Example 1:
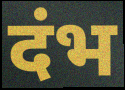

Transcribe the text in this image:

दंभ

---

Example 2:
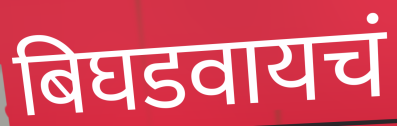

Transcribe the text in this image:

बिघडवायचं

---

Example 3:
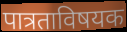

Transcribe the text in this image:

पात्रताविषयक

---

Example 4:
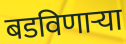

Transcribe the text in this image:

बडविणाऱ्या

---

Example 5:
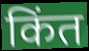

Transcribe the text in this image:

किंत